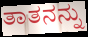
ತಾತನನ್ನು